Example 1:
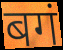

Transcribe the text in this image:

बगं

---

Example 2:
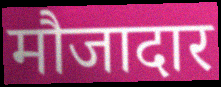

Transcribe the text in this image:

मौजादार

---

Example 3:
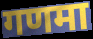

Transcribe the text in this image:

गणमा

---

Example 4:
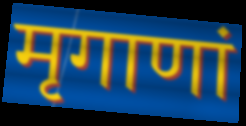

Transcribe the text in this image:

मृगाणां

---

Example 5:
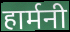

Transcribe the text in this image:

हार्मनी